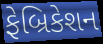
ફેબ્રિકેશન